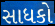
સાધકો